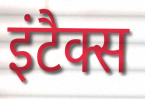
इंटैक्स